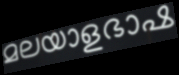
മലയാളഭാഷ